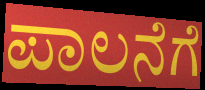
ಪಾಲನೆಗೆ